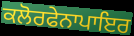
ਕਲੋਰਫੇਨਾਪਾਇਰ